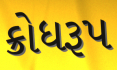
ક્રોધરૂપ